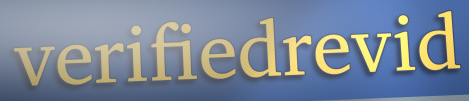
verifiedrevid